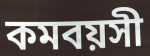
কমবয়সী